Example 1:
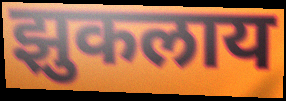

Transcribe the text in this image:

झुकलाय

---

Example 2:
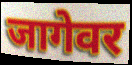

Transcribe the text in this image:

जागेवर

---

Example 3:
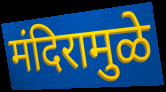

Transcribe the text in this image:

मंदिरामुळे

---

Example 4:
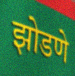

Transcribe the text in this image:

झोडणे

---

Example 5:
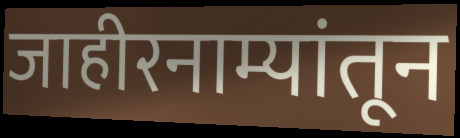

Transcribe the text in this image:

जाहीरनाम्यांतून